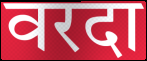
वरदा